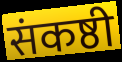
संकष्ठी